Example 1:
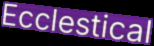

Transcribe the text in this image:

Ecclestical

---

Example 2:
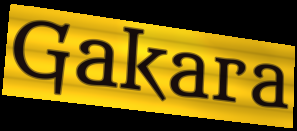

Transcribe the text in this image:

Gakara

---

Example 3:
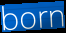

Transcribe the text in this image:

born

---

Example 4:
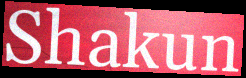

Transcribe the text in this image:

Shakun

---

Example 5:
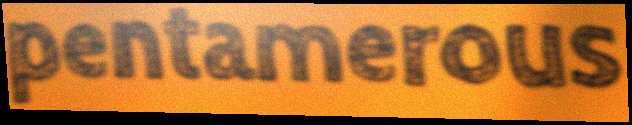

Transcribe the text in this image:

pentamerous